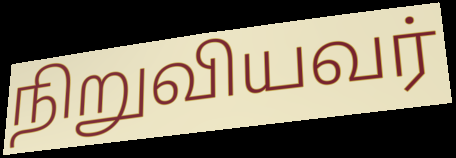
நிறுவியவர்